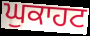
ਘੁਕਾਹਟ